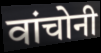
वांचोनी